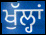
ਖੁੱਲ੍ਹਾਂ